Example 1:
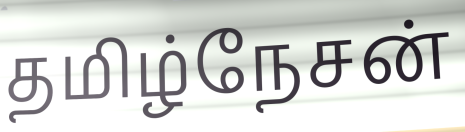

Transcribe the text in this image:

தமிழ்நேசன்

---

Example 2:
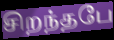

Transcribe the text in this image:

சிறந்தபே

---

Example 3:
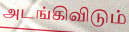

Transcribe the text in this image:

அடங்கிவிடும்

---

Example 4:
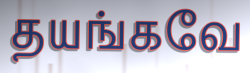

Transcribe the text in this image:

தயங்கவே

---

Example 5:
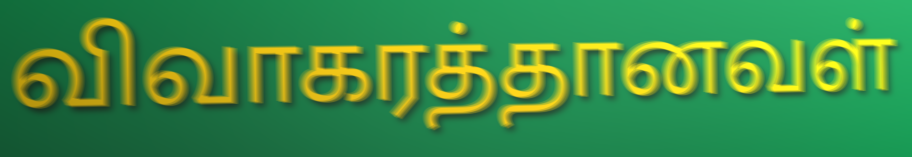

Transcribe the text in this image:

விவாகரத்தானவள்